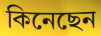
কিনেছেন